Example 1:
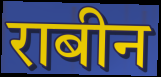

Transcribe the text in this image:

राबीन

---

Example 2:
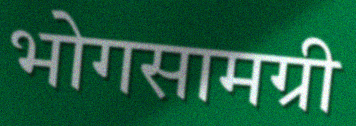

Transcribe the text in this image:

भोगसामग्री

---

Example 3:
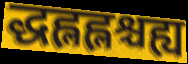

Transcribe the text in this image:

द्धह्लह्लश्चह्य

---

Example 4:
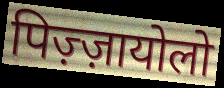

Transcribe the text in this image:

पिज़्ज़ायोलो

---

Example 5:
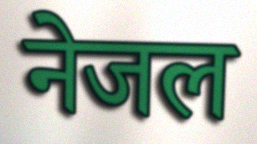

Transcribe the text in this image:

नेजल